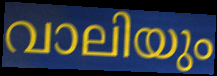
വാലിയും